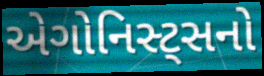
એગોનિસ્ટ્સનો